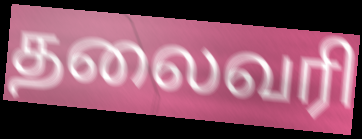
தலைவரி